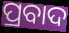
ପ୍ରବାଦ